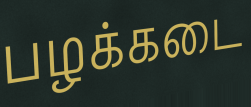
பழக்கடை